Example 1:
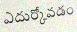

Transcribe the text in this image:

ఎదుర్కోవడం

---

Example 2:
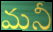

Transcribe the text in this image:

మనీ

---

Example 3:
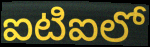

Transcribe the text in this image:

ఐటిఐలో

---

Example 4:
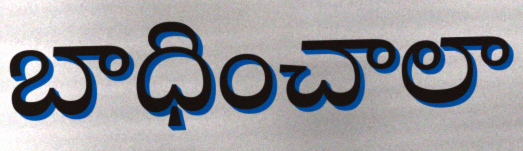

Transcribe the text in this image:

బాధించాలా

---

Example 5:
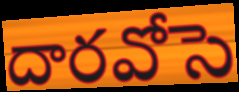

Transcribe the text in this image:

దారవోసె